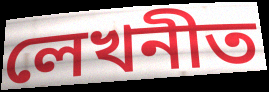
লেখনীত